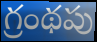
గ్రంథపు